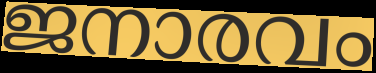
ജനാരവം